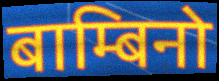
बाम्बिनो